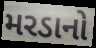
મરડાનો